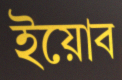
ইয়োব